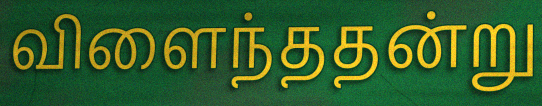
விளைந்ததன்று